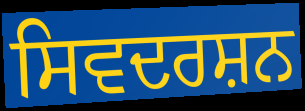
ਸਿਵਦਰਸ਼ਨ